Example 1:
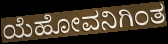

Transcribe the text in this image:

ಯೆಹೋವನಿಗಿಂತ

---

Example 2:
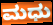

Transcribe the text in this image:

ಮಧು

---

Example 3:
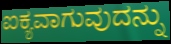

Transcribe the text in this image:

ಐಕ್ಯವಾಗುವುದನ್ನು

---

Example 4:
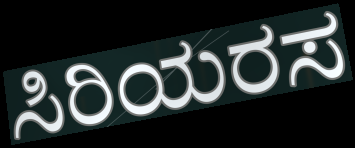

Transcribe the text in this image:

ಸಿರಿಯರಸ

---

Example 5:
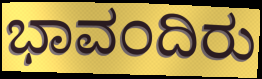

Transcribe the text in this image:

ಭಾವಂದಿರು